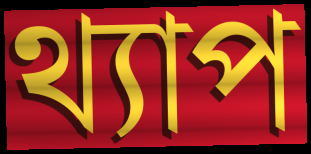
থ্যাপ